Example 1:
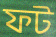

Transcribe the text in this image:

ফট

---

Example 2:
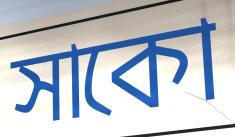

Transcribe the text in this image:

সাকো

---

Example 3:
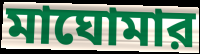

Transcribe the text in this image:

মাঘোমার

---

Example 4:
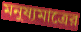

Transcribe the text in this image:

মনুষ্যমাত্রের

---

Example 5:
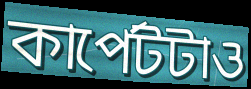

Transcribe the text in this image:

কার্পেটটাও